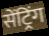
सेंट्रिंग